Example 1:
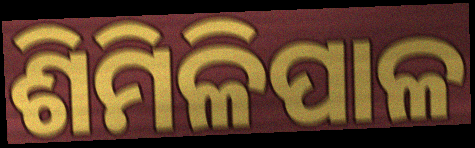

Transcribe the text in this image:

ଶିମିଳିପାଳ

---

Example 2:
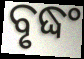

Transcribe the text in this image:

ବୃଦ୍ଧଂ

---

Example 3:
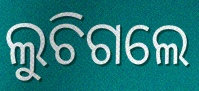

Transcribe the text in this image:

ଲୁଚିଗଲେ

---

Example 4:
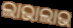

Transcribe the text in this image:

ଲାଭାଲାଭ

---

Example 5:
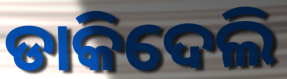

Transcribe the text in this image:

ଡାକିଦେଲି